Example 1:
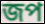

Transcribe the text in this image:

জপ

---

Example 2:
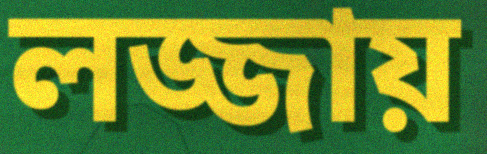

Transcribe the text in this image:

লজ্জায়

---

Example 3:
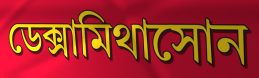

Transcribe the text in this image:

ডেক্সামিথাসোন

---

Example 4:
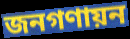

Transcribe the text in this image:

জনগণায়ন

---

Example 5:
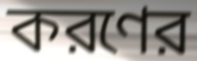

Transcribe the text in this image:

করণের